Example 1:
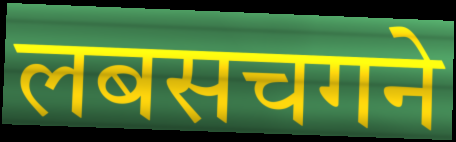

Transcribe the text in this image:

लबसचगने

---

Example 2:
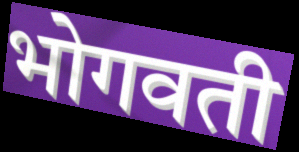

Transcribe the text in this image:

भोगवती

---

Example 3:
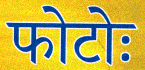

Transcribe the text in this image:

फोटोः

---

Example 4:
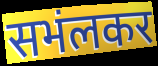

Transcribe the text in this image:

सभंलकर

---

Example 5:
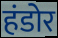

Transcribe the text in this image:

हंडोर